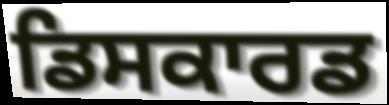
ਡਿਸਕਾਰਡ